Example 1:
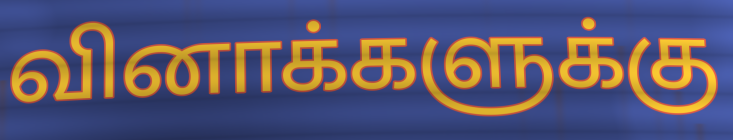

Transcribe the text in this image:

வினாக்களுக்கு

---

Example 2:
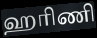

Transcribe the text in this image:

ஹரிணி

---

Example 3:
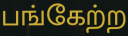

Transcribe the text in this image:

பங்கேற்ற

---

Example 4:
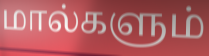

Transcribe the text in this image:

மால்களும்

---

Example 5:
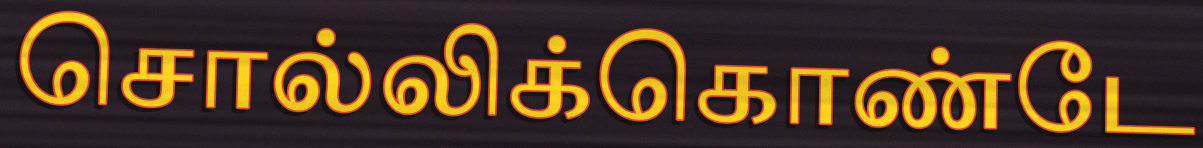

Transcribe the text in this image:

சொல்லிக்கொண்டே